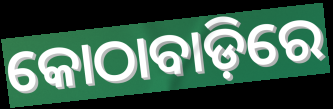
କୋଠାବାଡ଼ିରେ